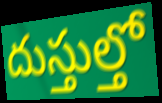
దుస్తుల్తో